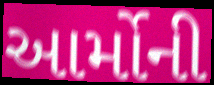
આર્મોની